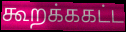
கூறக்ககட்ட